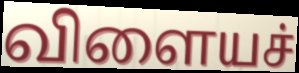
விளையச்